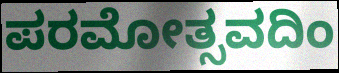
ಪರಮೋತ್ಸವದಿಂ